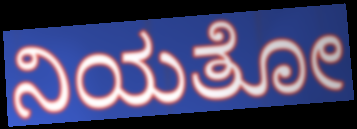
ನಿಯತೋ